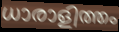
ധാരാളിത്തം